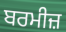
ਬਰਮੀਜ਼